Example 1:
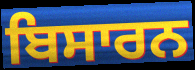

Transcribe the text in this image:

ਬਿਸਾਰਨ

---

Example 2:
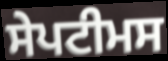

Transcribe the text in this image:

ਸੇਪਟੀਮਸ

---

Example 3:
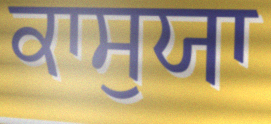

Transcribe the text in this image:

ਕਾਸੁਯਾ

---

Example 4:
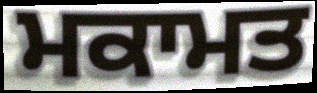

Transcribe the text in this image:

ਮਕਾਮਤ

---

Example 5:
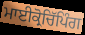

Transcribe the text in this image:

ਮਾਈਕ੍ਰੋਚਿੱਪਿੰਗ